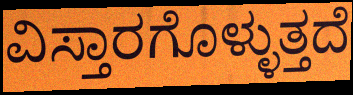
ವಿಸ್ತಾರಗೊಳ್ಳುತ್ತದೆ